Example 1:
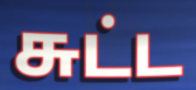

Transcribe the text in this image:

சுட்ட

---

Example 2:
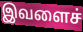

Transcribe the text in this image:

இவளைச்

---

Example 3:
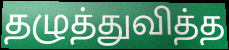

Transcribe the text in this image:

தழுத்துவித்த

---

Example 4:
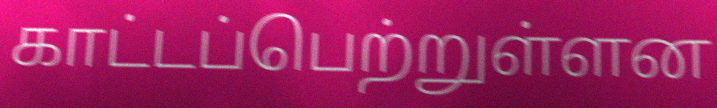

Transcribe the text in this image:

காட்டப்பெற்றுள்ளன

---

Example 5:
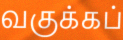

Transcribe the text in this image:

வகுக்கப்